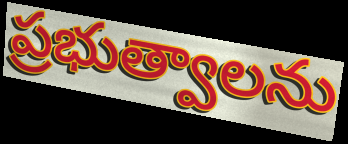
ప్రభుత్వాలను